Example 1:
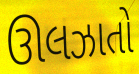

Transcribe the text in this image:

ઊલઝાતો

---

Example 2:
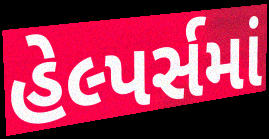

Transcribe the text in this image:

હેલ્પર્સમાં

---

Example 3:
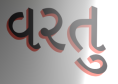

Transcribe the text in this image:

વરતુ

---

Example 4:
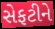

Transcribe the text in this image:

સેફટીને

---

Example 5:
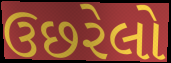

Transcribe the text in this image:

ઉછરેલો